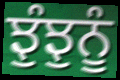
ਝੁੰਝੁਨੂੰ